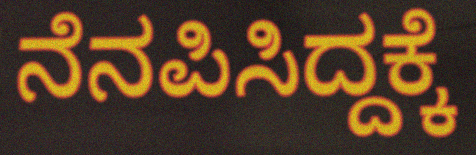
ನೆನಪಿಸಿದ್ದಕ್ಕೆ